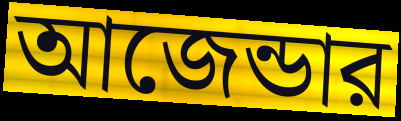
আজেন্ডার